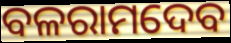
ବଳରାମଦେବ